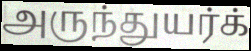
அருந்துயர்க்